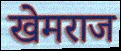
खेमराज